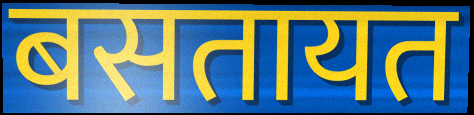
बसतायत